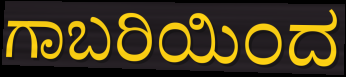
ಗಾಬರಿಯಿಂದ